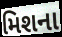
મિશના